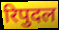
रिपुदल